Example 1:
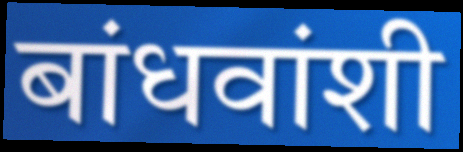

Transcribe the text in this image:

बांधवांशी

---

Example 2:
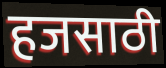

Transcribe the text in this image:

हजसाठी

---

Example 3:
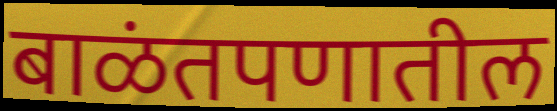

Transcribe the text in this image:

बाळंतपणातील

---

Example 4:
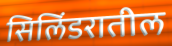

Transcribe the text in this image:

सिलिंडरातील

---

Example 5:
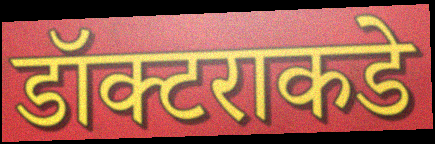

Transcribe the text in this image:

डॉक्टराकडे